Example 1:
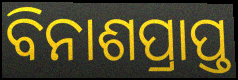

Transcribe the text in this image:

ବିନାଶପ୍ରାପ୍ତ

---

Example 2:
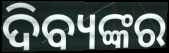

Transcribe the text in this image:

ଦିବ୍ୟଙ୍କର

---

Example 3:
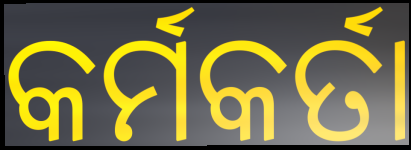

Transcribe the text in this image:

କର୍ମକର୍ତା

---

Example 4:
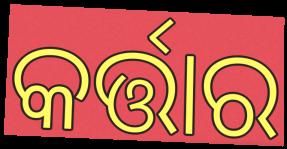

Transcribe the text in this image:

କର୍ତ୍ତାର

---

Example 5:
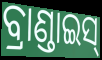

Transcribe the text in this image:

ବ୍ରାଣ୍ଡାଇସ୍